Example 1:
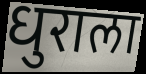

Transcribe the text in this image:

धुराला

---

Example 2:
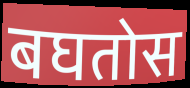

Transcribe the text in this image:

बघतोस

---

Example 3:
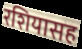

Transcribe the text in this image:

रशियासह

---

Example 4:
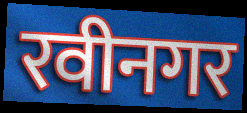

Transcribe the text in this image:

रवीनगर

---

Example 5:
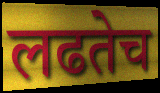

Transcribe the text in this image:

लढतेच